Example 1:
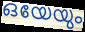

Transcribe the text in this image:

ഒയേയും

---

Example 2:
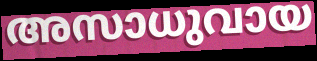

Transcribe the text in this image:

അസാധുവായ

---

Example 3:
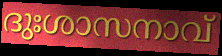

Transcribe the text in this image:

ദുഃശാസനാവ്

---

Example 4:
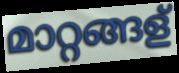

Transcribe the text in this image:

മാറ്റങ്ങള്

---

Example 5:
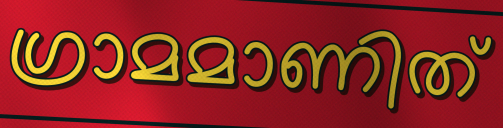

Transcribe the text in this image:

ഗ്രാമമാണിത്